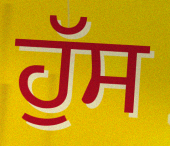
ਹੁੱਸ